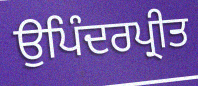
ਉਪਿੰਦਰਪ੍ਰੀਤ